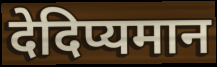
देदिप्यमान